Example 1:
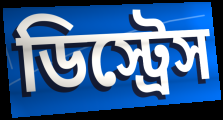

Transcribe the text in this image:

ডিস্ট্রেস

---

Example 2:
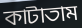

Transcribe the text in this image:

কাটাতাম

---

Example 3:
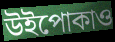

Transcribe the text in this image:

উইপোকাও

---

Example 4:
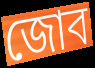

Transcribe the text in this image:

জোব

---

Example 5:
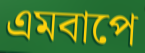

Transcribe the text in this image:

এমবাপে